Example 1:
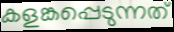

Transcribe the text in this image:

കളങ്കപ്പെടുന്നത്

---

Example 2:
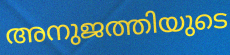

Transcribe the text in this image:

അനുജത്തിയുടെ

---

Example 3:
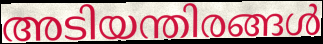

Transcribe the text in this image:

അടിയന്തിരങ്ങൾ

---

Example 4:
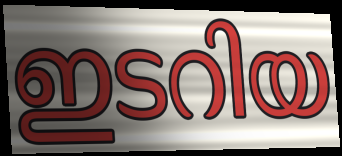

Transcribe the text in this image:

ഇടറിയ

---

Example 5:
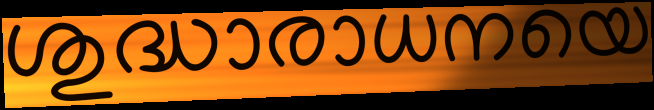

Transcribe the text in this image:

ശുദ്ധാരാധനയെ